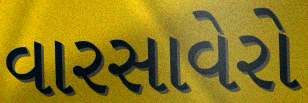
વારસાવેરો